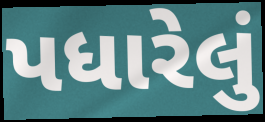
પધારેલું